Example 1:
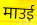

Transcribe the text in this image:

माउई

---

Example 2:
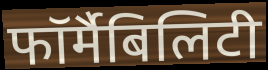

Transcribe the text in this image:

फॉर्मैबिलिटी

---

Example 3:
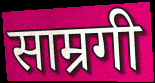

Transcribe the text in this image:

साम्रगी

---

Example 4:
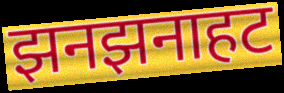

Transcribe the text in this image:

झनझनाहट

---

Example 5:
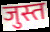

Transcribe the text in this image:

जुस्त